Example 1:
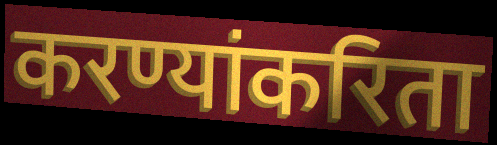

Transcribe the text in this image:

करण्यांकरिता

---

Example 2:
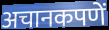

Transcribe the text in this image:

अचानकपणें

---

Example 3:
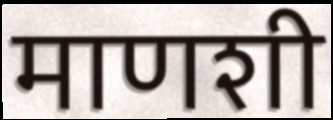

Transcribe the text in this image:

माणशी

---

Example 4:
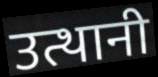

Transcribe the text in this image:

उत्थानी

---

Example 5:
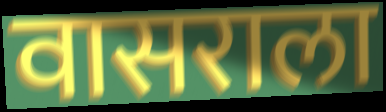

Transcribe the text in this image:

वासराला